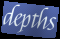
depths